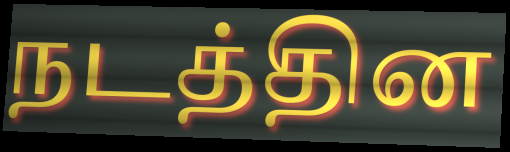
நடத்தின